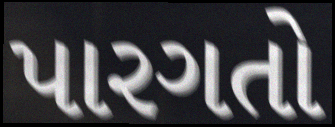
પારગતો